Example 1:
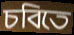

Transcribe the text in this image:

চবিতে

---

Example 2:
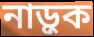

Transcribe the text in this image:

নাড়ুক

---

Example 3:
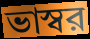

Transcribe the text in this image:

ভাস্বর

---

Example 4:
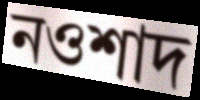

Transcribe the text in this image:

নওশাদ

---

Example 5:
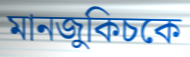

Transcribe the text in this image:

মানজুকিচকে